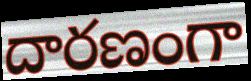
దారణంగా